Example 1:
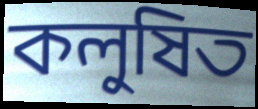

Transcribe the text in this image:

কলুষিত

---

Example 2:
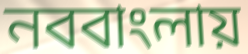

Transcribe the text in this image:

নববাংলায়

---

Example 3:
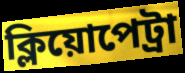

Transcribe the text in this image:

ক্লিয়োপেট্রা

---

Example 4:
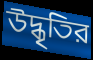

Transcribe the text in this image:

উদ্ধৃতির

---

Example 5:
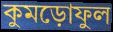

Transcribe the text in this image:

কুমড়োফুল